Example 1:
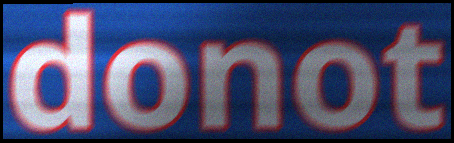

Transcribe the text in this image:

donot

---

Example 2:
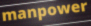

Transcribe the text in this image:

manpower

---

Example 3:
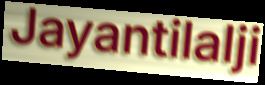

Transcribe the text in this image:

Jayantilalji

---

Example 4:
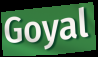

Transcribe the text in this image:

Goyal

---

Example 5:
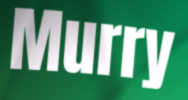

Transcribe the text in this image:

Murry